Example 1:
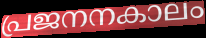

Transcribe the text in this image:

പ്രജനനകാലം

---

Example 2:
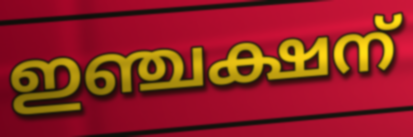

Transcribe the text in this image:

ഇഞ്ചക്ഷന്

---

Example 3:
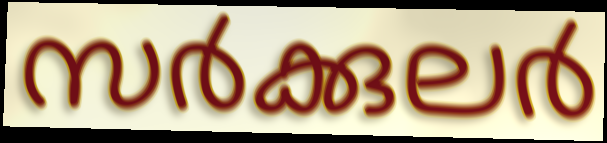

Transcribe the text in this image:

സർക്കുലർ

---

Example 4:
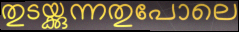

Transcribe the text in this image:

തുടയ്ക്കുന്നതുപോലെ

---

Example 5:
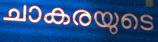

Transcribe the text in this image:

ചാകരയുടെ